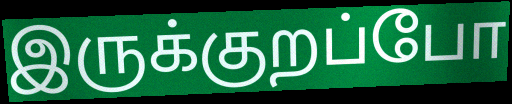
இருக்குறப்போ